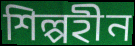
শিল্পহীন